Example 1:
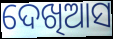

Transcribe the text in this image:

ଦେଖିଆସ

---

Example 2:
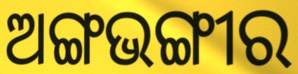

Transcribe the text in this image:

ଅଙ୍ଗଭଙ୍ଗୀର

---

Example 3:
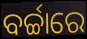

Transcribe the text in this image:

ବର୍ଚ୍ଚାରେ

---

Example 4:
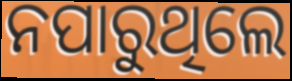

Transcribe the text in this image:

ନପାରୁଥିଲେ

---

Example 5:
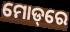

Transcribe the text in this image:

ମୋଡ୍‌ରେ